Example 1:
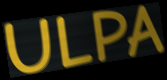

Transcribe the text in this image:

ULPA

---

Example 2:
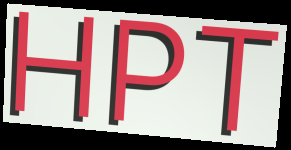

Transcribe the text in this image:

HPT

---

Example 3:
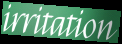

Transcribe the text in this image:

irritation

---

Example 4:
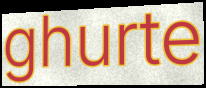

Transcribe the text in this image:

ghurte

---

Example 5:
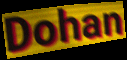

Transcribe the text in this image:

Dohan